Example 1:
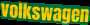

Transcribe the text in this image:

volkswagen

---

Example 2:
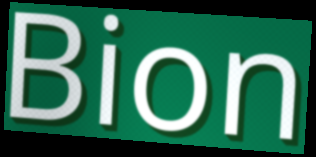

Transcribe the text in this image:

Bion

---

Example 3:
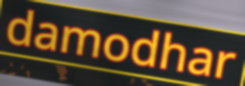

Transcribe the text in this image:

damodhar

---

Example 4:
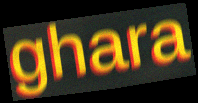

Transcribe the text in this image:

ghara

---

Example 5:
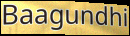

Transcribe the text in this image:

Baagundhi